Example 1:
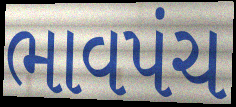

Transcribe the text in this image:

ભાવપંચ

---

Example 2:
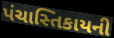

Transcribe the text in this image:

પંચાસ્તિકાયની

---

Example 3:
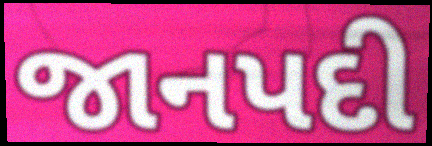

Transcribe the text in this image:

જાનપદી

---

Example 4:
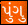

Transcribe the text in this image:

પુંગુ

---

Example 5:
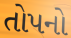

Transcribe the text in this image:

તોપનો